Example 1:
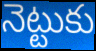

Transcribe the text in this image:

నెట్టుకు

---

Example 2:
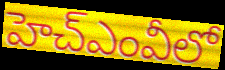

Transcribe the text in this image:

హెచ్ఎంవీలో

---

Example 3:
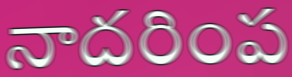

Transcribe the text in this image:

నాదరింప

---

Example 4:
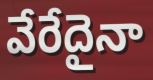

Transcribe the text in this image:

వేరేదైనా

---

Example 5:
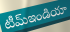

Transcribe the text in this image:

టీమ్ఇండియా